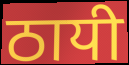
ठायी